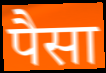
पैसा